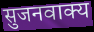
सुजनवाक्य